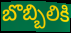
బొబ్బిలికి